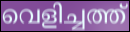
വെളിച്ചത്ത്